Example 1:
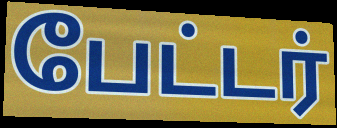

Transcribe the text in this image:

பேட்டர்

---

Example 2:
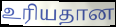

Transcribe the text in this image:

உரியதான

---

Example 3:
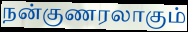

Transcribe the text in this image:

நன்குணரலாகும்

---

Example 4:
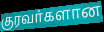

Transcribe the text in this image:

குரவர்களான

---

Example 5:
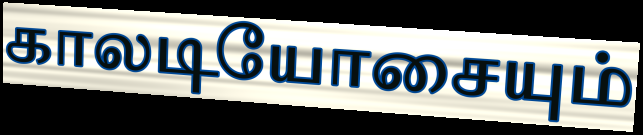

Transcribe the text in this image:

காலடியோசையும்